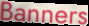
Banners